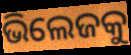
ଭିଲେଜକୁ